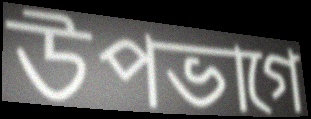
উপভাগে